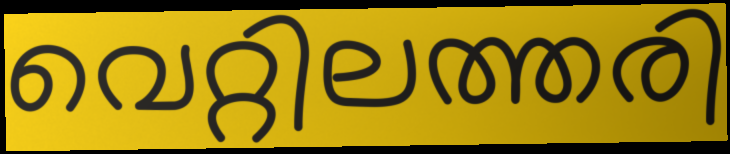
വെറ്റിലത്തരി